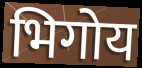
भिगोय